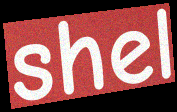
shel